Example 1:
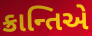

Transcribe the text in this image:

ક્રાન્તિએ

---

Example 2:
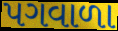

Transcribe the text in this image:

પગવાળા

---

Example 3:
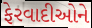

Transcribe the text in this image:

ફેરવાદીઓને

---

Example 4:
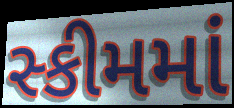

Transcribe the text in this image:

સ્કીમમાં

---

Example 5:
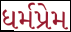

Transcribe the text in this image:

ધર્મપ્રેમ